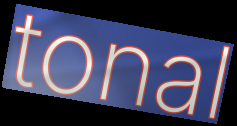
tonal